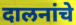
दालनांचे